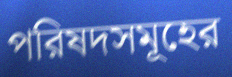
পরিষদসমূহের